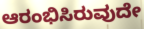
ಆರಂಭಿಸಿರುವುದೇ